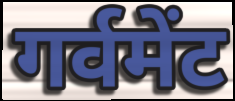
गर्वमेंट